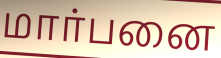
மார்பனை